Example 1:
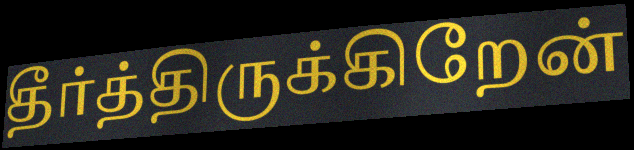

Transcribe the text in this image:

தீர்த்திருக்கிறேன்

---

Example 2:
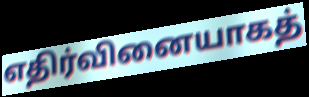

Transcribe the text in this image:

எதிர்வினையாகத்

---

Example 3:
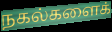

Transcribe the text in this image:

நகல்களைக்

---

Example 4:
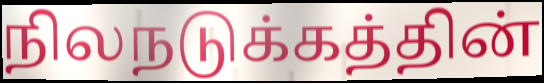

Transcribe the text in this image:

நிலநடுக்கத்தின்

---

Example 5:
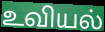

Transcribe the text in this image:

உவியல்